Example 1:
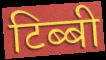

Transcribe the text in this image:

टिब्बी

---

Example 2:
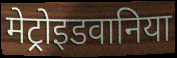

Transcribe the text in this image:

मेट्रोइडवानिया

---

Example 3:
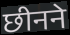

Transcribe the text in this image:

छीनने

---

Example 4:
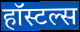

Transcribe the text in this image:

हॉस्टल्स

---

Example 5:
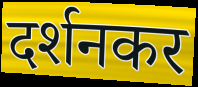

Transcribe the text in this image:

दर्शनकर